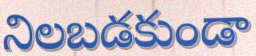
నిలబడకుండా